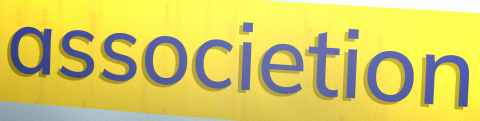
associetion